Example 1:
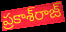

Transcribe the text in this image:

ప్రకాశ్‌రాజ్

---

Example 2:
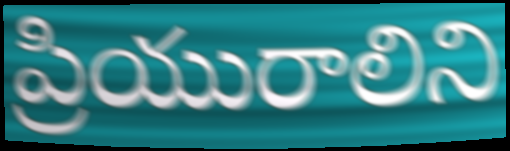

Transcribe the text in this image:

ప్రియురాలిని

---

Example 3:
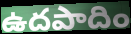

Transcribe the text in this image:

ఉదపాదిం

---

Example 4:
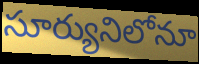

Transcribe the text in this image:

సూర్యునిలోనూ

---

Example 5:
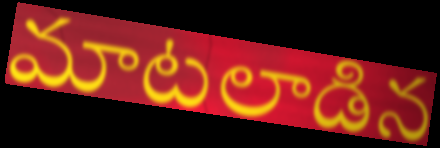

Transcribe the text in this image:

మాటలాడిన